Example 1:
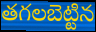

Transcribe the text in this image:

తగలబెట్టిన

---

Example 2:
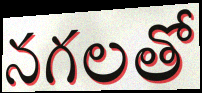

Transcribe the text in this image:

నగలతో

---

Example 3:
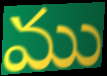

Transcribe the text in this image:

ము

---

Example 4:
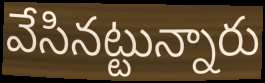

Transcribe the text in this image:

వేసినట్టున్నారు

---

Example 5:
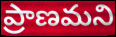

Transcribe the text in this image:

ప్రాణమని